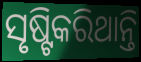
ସୃଷ୍ଟିକରିଥାନ୍ତି